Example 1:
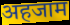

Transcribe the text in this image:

अहजाम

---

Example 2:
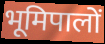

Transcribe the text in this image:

भूमिपालों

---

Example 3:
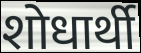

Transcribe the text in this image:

शोधार्थी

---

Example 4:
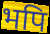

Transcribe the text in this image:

भपि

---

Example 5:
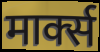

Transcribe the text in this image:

मार्क्‍स